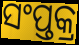
ସଂପ୍ତକ୍ର